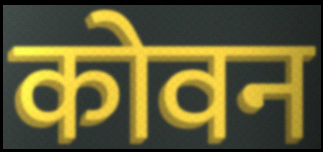
कोवन